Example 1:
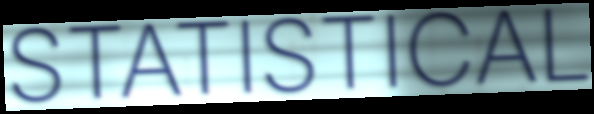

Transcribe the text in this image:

STATISTICAL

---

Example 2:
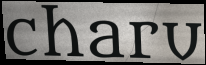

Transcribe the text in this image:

charu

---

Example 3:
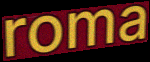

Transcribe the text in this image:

roma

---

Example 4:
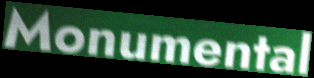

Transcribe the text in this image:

Monumental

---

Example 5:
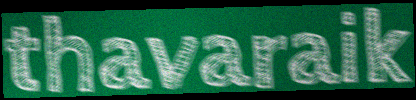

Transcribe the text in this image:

thavaraik